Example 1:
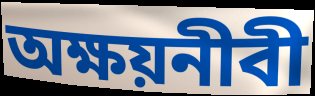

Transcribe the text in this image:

অক্ষয়নীবী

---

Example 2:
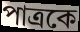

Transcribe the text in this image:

পাত্রকে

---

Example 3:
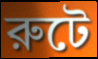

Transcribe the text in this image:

রুটে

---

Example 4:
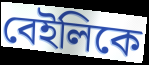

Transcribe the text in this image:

বেইলিকে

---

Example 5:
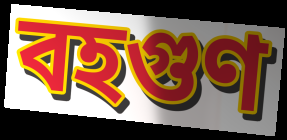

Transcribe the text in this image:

বহগুণ